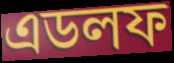
এডলফ